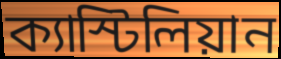
ক্যাস্টিলিয়ান